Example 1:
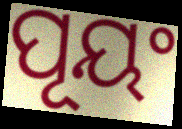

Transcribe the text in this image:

ପୂୟଂ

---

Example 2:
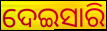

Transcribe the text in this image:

ଦେଇସାରି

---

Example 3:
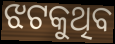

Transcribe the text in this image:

ଝଟକୁଥିବ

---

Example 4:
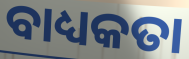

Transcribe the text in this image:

ବାଧ୍ୟକତା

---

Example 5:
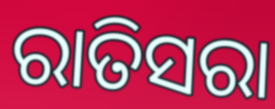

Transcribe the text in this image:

ରାତିସରା